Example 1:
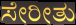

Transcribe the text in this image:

ಸೇರೀತು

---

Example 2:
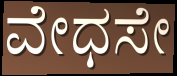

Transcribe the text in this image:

ವೇಧಸೇ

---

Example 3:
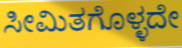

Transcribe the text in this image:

ಸೀಮಿತಗೊಳ್ಳದೇ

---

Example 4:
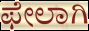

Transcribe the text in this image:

ಫೇಲಾಗಿ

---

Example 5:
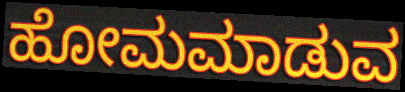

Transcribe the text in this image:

ಹೋಮಮಾಡುವ